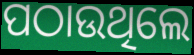
ପଠାଉଥିଲେ